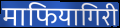
माफियागिरी